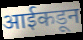
आईकडून